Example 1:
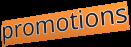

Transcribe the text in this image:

promotions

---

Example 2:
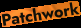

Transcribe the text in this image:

Patchwork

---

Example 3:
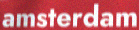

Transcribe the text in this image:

amsterdam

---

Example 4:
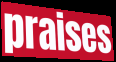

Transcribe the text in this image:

praises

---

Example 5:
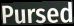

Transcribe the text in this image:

Pursed